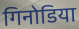
गिनोडिया